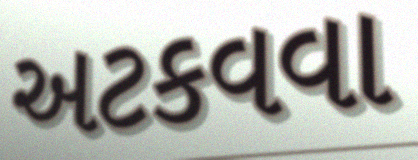
અટકવવા